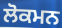
ਲੋਕਮਨ